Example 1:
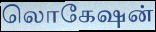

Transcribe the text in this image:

லொகேஷன்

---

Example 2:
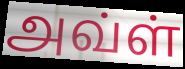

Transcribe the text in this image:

அவ்ள்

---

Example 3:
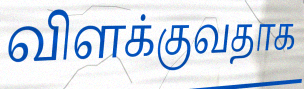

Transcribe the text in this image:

விளக்குவதாக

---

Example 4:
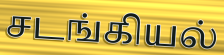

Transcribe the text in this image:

சடங்கியல்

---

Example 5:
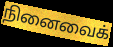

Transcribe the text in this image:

நினைவைக்